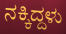
ನಕ್ಕಿದ್ದಳು